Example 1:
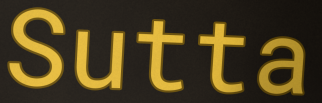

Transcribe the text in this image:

Sutta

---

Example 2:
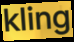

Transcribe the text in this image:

kling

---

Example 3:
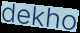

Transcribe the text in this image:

dekho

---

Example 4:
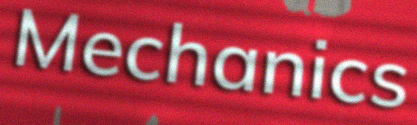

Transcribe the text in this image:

Mechanics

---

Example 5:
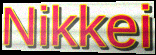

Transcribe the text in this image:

Nikkei